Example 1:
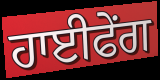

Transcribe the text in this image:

ਹਾਈਫੇਂਗ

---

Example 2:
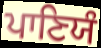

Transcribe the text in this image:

ਪਾਣਿਯੰ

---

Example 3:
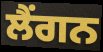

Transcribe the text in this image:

ਲੈਂਗਨ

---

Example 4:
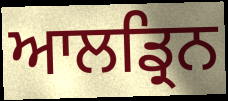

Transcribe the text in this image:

ਆਲਡ੍ਰਿਨ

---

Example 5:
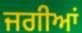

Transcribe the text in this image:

ਜਗੀਆਂ